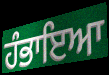
ਹੰਭਾਇਆ